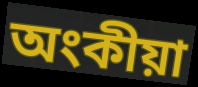
অংকীয়া